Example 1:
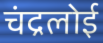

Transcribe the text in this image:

चंद्रलोई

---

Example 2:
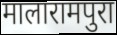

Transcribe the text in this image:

मालारामपुरा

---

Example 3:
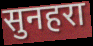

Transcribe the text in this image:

सुनहरा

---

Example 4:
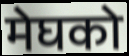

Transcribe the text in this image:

मेघको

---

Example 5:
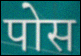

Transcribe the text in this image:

पोस